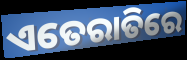
ଏତେରାତିରେ